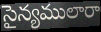
సైన్యములారా